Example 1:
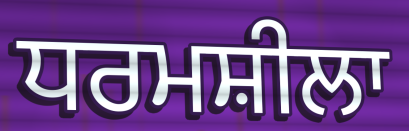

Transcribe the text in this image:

ਧਰਮਸ਼ੀਲਾ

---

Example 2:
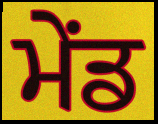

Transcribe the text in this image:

ਮੇਂਡ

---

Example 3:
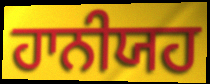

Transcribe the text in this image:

ਹਾਨੀਯਹ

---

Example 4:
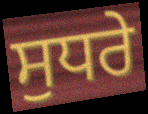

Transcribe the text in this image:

ਸੁਧਰੇ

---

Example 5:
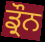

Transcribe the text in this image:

ਡ੍ਰੌਨ